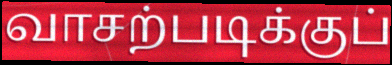
வாசற்படிக்குப்